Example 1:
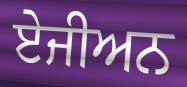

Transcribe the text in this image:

ਏਜੀਅਨ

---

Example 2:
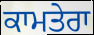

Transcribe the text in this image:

ਕਾਮਤੇਰਾ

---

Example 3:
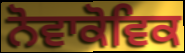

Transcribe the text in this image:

ਨੋਵਾਕੋਵਿਕ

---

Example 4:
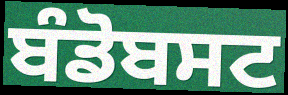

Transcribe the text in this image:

ਬੰਡੋਬਸਟ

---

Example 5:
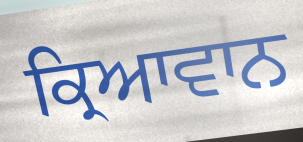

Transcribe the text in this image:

ਕ੍ਰਿਆਵਾਨ